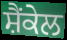
ਸ਼ੈਂਕੇਲ